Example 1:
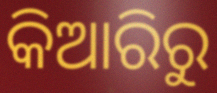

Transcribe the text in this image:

କିଆରିରୁ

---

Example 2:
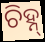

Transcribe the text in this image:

ଚିହ୍ନ୍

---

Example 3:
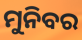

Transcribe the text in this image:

ମୁନିବର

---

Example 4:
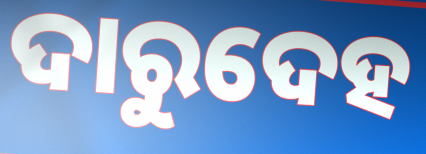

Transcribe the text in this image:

ଦାରୁଦେହ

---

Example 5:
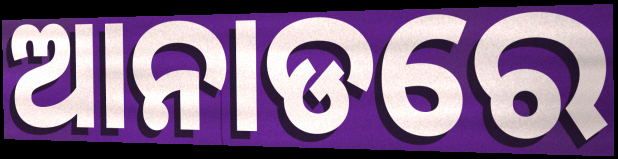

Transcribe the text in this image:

ଆନାଡରେ